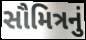
સૌમિત્રનું